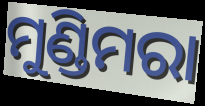
ମୁଣ୍ଡିମରା